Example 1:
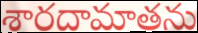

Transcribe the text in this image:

శారదామాతను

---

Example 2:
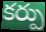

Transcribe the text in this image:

కర్పు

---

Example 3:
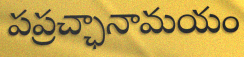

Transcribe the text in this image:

పప్రచ్ఛానామయం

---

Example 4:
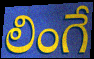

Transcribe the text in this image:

లింగే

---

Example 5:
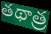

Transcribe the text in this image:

తథాత్ర